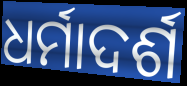
ଧର୍ମାଦର୍ଶ